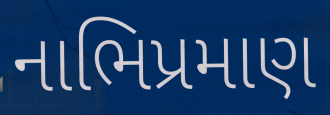
નાભિપ્રમાણ